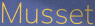
Musset